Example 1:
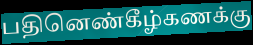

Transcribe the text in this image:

பதினெண்கீழ்கணக்கு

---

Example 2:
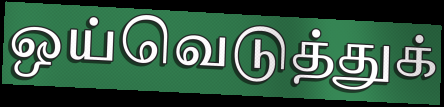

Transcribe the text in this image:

ஒய்வெடுத்துக்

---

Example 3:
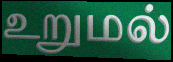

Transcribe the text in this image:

உறுமல்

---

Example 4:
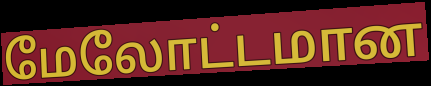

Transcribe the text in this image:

மேலோட்டமான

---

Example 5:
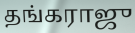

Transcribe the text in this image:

தங்கராஜு